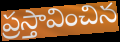
ప్రస్తావించిన